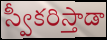
స్వీకరిస్తాడా